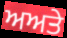
ਅਅਤੇ